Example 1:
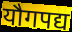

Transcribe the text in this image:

यौगपद्य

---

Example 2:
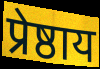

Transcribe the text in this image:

प्रेष्ठाय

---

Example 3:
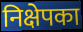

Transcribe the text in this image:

निक्षेपका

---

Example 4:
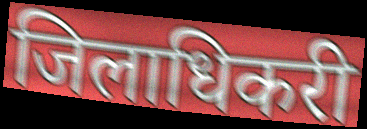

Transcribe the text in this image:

जिलाधिकरी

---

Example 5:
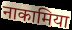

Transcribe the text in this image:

नाकामिया